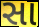
સા